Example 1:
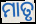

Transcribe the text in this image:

ମାତୃ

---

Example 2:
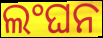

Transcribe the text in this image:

ଲଂଘନ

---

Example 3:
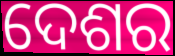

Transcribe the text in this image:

ଦେଶର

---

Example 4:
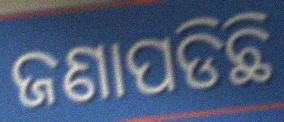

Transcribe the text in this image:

ଜଣାପଡିଛି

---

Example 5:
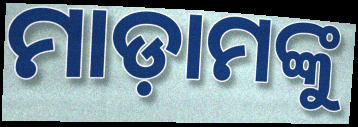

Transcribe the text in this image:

ମାଡ଼ାମଙ୍କୁ